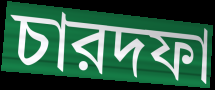
চারদফা